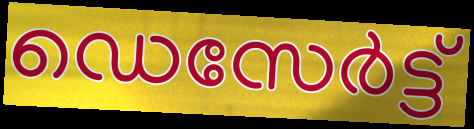
ഡെസേർട്ട്